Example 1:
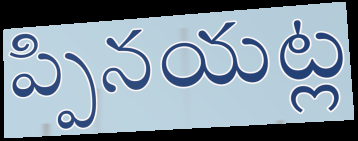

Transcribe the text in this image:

ప్పినయట్ల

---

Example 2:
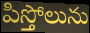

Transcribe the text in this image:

పిస్తోలును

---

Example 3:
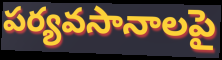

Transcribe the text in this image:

పర్యవసానాలపై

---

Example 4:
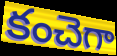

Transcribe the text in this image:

కంచెగా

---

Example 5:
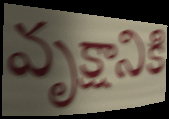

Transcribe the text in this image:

వృక్షానికి